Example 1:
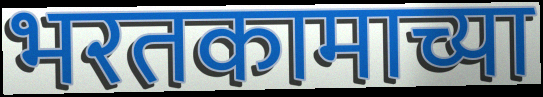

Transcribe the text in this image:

भरतकामाच्या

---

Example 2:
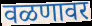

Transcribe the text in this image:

वळणावर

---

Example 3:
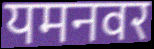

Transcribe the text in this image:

यमनवर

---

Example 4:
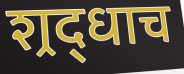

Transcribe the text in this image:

श्रद्धाच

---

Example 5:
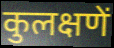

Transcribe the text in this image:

कुलक्षणें